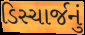
ડિસ્ચાર્જનું